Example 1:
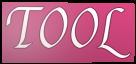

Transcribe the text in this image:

TOOL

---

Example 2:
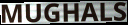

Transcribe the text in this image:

MUGHALS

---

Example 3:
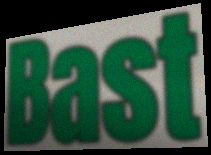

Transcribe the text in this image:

Bast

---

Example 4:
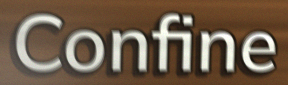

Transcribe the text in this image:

Confine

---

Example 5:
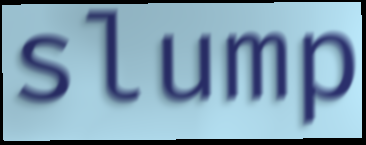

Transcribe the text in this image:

slump